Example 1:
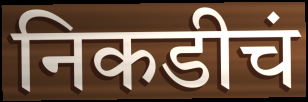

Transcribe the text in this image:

निकडीचं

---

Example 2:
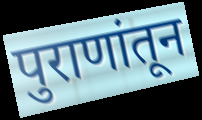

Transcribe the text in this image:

पुराणांतून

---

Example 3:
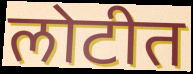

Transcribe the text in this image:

लोटीत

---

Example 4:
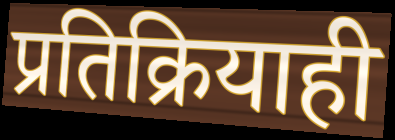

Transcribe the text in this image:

प्रतिक्रियाही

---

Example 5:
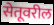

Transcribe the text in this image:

सेतूवरील